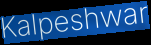
Kalpeshwar